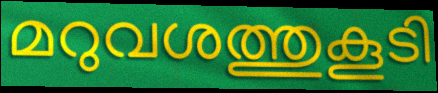
മറുവശത്തുകൂടി